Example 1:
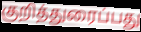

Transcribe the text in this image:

குறித்துரைப்பது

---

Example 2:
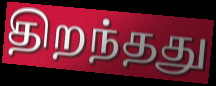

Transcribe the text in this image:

திறந்தது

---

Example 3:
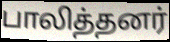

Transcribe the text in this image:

பாலித்தனர்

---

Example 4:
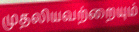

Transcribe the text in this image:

முதலியவற்றையும்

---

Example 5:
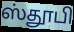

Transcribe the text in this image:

ஸ்தூபி